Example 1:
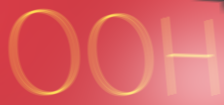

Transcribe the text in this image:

OOH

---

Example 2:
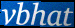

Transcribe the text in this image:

vbhat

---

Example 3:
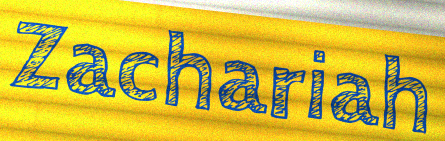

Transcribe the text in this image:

Zachariah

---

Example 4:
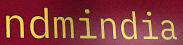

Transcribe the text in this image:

ndmindia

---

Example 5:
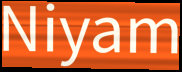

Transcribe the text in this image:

Niyam